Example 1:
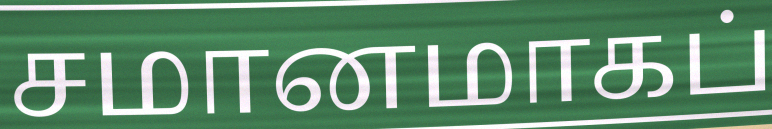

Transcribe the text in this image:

சமானமாகப்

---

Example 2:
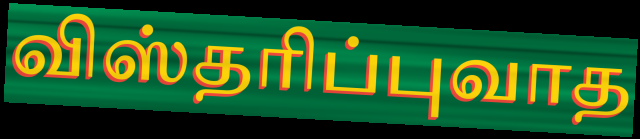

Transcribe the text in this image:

விஸ்தரிப்புவாத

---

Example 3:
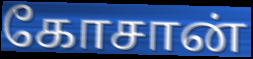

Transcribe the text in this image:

கோசான்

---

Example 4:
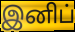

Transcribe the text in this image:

இனிப்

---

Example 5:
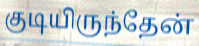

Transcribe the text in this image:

குடியிருந்தேன்